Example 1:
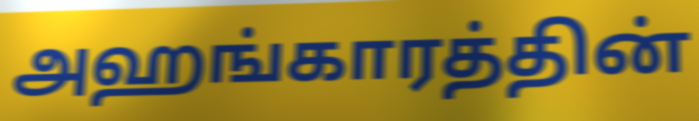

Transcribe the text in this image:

அஹங்காரத்தின்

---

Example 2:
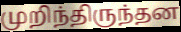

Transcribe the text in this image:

முறிந்திருந்தன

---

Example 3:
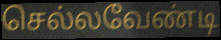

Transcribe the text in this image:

செல்லவேண்டி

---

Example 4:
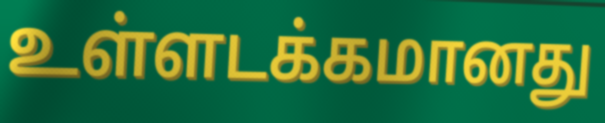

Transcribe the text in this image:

உள்ளடக்கமானது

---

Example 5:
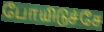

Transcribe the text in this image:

போயிடுச்சே